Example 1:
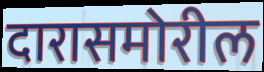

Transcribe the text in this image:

दारासमोरील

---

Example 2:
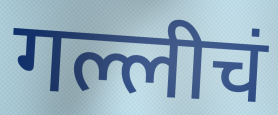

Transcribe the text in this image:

गल्लीचं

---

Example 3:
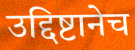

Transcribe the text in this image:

उद्दिष्टानेच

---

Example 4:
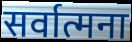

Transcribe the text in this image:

सर्वात्मना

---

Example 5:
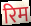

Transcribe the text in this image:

रिम